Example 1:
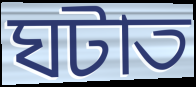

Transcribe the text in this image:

ঘটাত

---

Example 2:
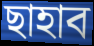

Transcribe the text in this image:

ছাহাব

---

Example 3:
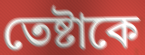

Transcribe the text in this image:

তেষ্টাকে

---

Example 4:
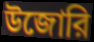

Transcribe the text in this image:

উজোরি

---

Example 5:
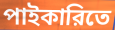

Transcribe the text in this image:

পাইকারিতে